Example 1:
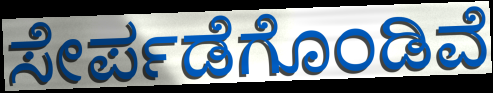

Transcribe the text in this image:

ಸೇರ್ಪಡೆಗೊಂಡಿವೆ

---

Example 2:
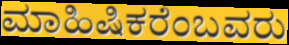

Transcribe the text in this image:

ಮಾಹಿಷಿಕರೆಂಬವರು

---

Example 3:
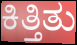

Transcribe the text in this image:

ಕಿತ್ತಿತು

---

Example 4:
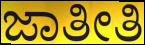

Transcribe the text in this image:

ಜಾತೀತಿ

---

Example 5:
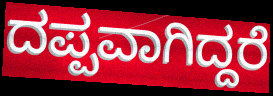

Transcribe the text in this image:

ದಪ್ಪವಾಗಿದ್ದರೆ